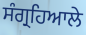
ਸੰਗ੍ਰਹਿਆਲੇ